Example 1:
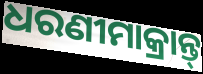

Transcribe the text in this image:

ଧରଣୀମାକ୍ରାନ୍ତ୍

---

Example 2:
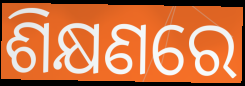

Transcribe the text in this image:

ଶିକ୍ଷଣରେ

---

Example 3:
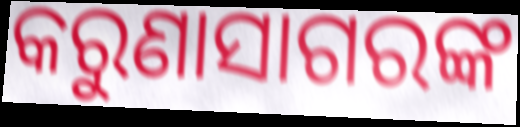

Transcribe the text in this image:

କରୁଣାସାଗରଙ୍କ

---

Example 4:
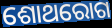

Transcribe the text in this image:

ଶୋଥରୋଗ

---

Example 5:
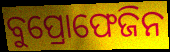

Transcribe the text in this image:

ବୁପ୍ରୋଫେଜିନ